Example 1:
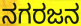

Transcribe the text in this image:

ನಗರಜನ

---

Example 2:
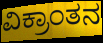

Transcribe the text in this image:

ವಿಕ್ರಾಂತನ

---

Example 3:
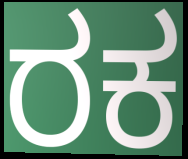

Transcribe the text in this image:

ರಕ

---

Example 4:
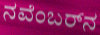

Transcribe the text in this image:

ನವೆಂಬರ್‌ನ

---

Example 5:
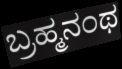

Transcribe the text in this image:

ಬ್ರಹ್ಮನಂಥ